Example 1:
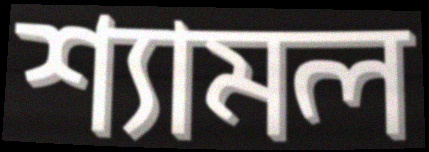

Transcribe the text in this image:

শ্যামল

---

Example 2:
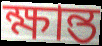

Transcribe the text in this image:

ক্ষান্ত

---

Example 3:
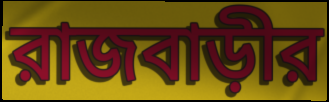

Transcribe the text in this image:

রাজবাড়ীর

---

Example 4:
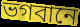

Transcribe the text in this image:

ভগবানে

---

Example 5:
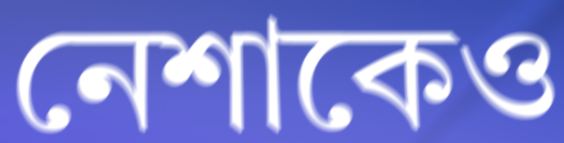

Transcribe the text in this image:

নেশাকেও